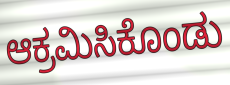
ಆಕ್ರಮಿಸಿಕೊಂಡು